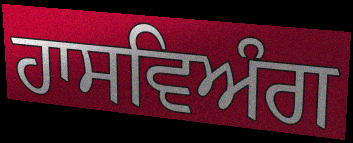
ਹਾਸਵਿਅੰਗ